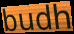
budh